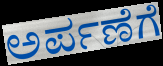
ಅರ್ಪಣೆಗೆ